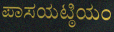
ಪಾಸಯಟ್ಠಿಯಂ